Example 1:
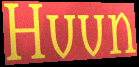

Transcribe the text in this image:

Huun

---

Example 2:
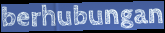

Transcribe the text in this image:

berhubungan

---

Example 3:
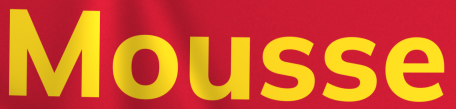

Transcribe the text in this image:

Mousse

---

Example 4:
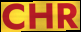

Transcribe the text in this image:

CHR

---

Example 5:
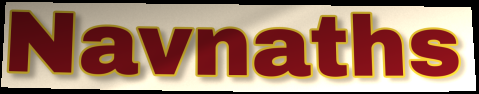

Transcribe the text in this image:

Navnaths